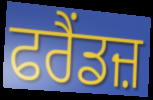
ਫਰੈਂਡਜ਼